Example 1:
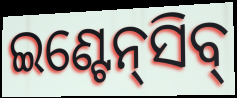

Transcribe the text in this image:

ଇଣ୍ଟେନ୍‍ସିବ୍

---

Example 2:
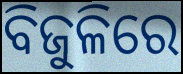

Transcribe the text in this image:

ବିଜୁଳିରେ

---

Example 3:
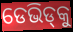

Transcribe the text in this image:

ଡେଭିଡ୍‍କୁ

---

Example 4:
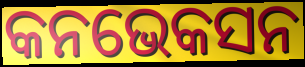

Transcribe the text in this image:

କନଭେକସନ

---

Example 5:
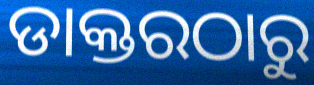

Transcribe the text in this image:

ଡାକ୍ତରଠାରୁ